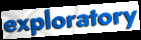
exploratory